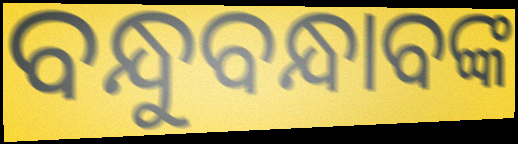
ବନ୍ଧୁବନ୍ଧାବଙ୍କ